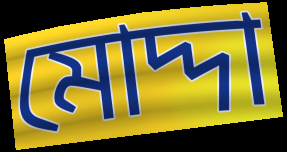
মোদ্দা